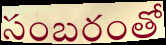
సంబరంతో